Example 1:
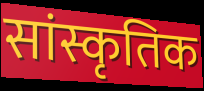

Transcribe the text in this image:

सांस्‍कृतिक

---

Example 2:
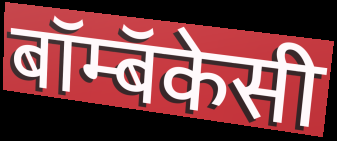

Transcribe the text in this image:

बॉम्बॅकेसी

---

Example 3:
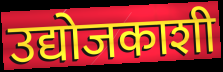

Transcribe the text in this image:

उद्योजकाशी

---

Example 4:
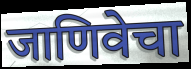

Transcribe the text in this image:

जाणिवेचा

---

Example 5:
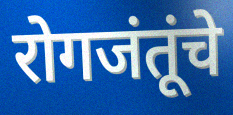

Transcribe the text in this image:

रोगजंतूंचे